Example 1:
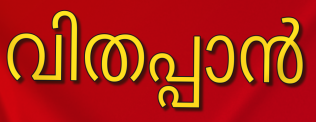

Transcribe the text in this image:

വിതപ്പാൻ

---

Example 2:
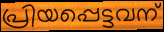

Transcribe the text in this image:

പ്രിയപ്പെട്ടവന്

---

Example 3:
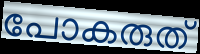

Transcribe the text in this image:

പോകരുത്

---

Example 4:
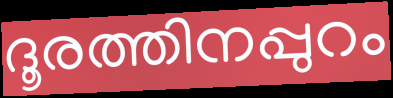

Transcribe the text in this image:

ദൂരത്തിനപ്പുറം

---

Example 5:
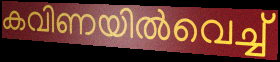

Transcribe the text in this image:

കവിണയിൽവെച്ച്